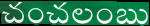
చంచలంబు